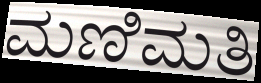
ಮಣಿಮತಿ